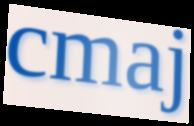
cmaj